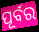
ପୂର୍ବର